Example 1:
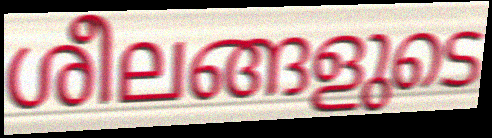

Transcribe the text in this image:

ശീലങ്ങളുടെ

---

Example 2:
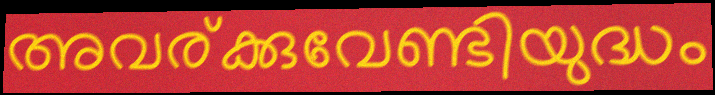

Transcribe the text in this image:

അവര്ക്കുവേണ്ടിയുദ്ധം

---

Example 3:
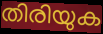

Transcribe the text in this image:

തിരിയുക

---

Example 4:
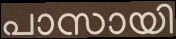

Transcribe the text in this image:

പാസായി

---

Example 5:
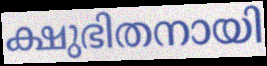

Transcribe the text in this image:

ക്ഷുഭിതനായി